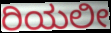
ರಿಯಲೀ